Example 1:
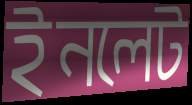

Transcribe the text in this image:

ইনলেট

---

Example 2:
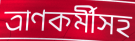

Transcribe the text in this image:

ত্রাণকর্মীসহ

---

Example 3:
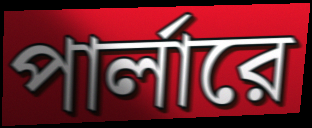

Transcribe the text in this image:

পার্লারে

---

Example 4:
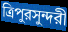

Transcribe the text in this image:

ত্রিপুরসুন্দরী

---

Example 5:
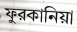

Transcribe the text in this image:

ফুরকানিয়া